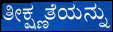
ತೀಕ್ಷ್ಣತೆಯನ್ನು